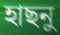
হাছনু